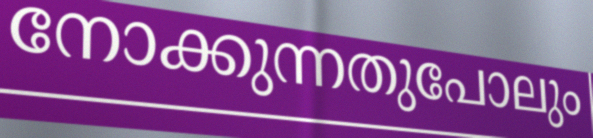
നോക്കുന്നതുപോലും